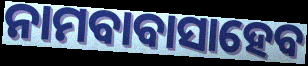
ନାମବାବାସାହେବ